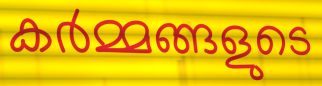
കർമ്മങ്ങളുടെ